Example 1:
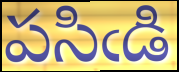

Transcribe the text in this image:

పసిఁడి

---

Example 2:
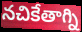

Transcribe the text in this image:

నచికేతాగ్ని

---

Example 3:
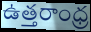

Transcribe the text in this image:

ఉత్తరాంధ్ర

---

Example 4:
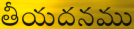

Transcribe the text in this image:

తీయదనము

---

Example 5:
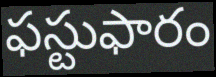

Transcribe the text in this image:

ఫస్టుఫారం